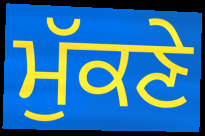
ਮੁੱਕਣੇ